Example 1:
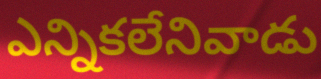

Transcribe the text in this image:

ఎన్నికలేనివాడు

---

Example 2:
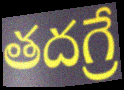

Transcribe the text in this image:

తదగ్రే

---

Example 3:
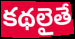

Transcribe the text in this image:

కథలైతే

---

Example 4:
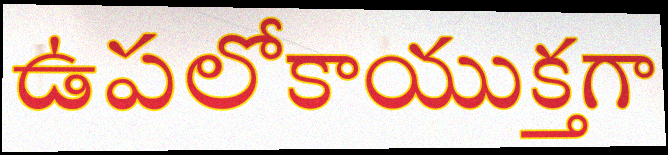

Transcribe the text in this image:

ఉపలోకాయుక్తగా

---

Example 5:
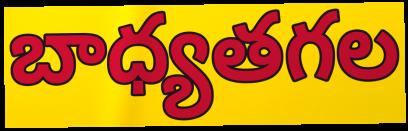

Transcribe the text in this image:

బాధ్యతగల